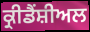
ਕ੍ਰੀਡੈਂਸ਼ੀਅਲ